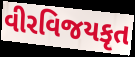
વીરવિજયકૃત